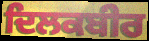
ਦਿਲਕਬੀਰ